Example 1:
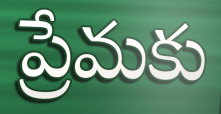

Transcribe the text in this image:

ప్రేమకు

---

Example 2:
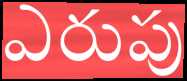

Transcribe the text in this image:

ఎరుపు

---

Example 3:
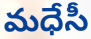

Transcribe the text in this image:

మధేసీ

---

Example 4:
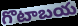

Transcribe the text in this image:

గొటాబయ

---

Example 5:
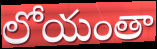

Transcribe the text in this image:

లోయంతా